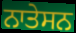
ਨਾਤੇਸਨ